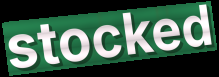
stocked